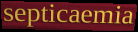
septicaemia